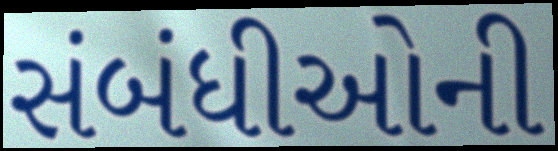
સંબંધીઓની